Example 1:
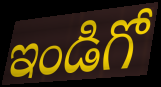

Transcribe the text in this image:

ఇండిగో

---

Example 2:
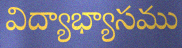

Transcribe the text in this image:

విద్యాభ్యాసము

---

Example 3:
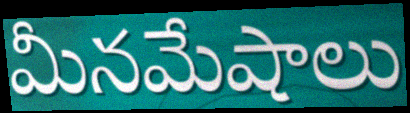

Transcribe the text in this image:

మీనమేషాలు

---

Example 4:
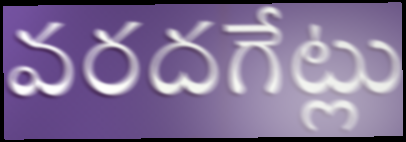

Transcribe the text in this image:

వరదగేట్లు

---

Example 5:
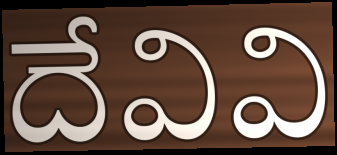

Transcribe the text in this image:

దేవివి